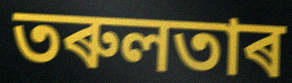
তৰুলতাৰ